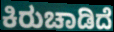
ಕಿರುಚಾಡಿದೆ